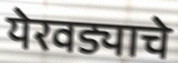
येरवड्याचे